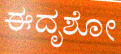
ಈದೃಶೋ